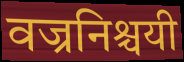
वज्रनिश्चयी